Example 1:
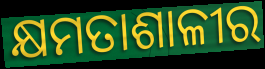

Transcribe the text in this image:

କ୍ଷମତାଶାଳୀର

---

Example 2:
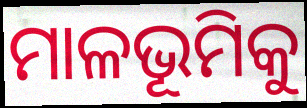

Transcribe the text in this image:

ମାଳଭୂମିକୁ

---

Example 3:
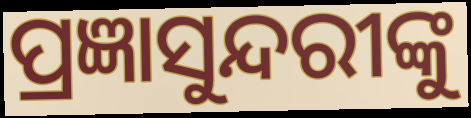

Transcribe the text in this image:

ପ୍ରଜ୍ଞାସୁନ୍ଦରୀଙ୍କୁ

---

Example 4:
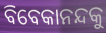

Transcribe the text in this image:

ବିବେକାନନ୍ଦକୁ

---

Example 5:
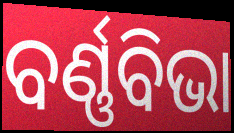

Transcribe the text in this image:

ବର୍ଣ୍ଣବିଭା